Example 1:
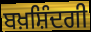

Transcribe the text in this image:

ਬਖ਼ਸ਼ਿੰਦਗੀ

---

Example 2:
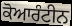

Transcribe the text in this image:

ਕੋਆਰੰਟੀਨ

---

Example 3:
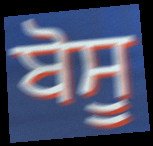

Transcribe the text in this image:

ਬੋਸੂ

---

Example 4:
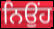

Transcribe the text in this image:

ਨਿਉਂਹ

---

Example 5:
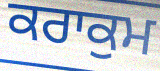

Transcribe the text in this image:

ਕਰਾਕੁਮ